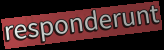
responderunt